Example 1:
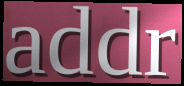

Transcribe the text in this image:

addr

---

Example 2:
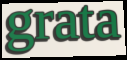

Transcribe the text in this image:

grata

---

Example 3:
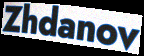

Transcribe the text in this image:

Zhdanov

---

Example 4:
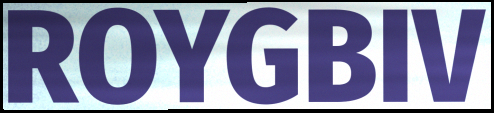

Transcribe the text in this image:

ROYGBIV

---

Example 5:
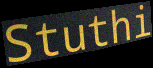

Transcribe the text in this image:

Stuthi